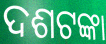
ଦଶଟଙ୍କା